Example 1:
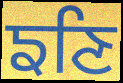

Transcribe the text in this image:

ਙਣਿ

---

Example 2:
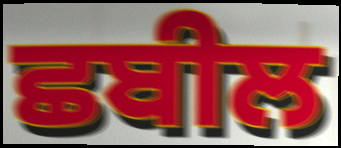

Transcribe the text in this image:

ਛਬੀਲ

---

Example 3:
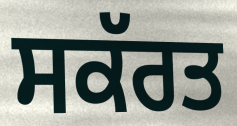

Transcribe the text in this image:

ਸਕੱਰਤ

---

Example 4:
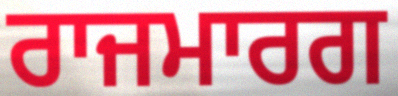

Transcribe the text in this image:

ਰਾਜਮਾਰਗ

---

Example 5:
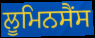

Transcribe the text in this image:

ਲੂਮਿਨਸੈਂਸ